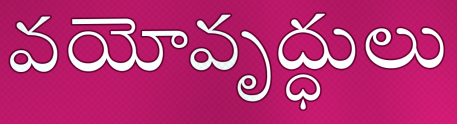
వయోవృద్ధులు